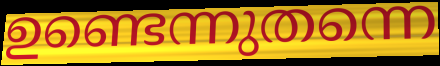
ഉണ്ടെന്നുതന്നെ